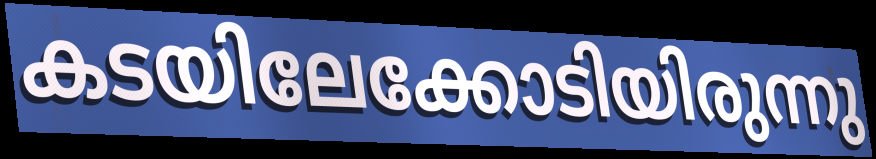
കടയിലേക്കോടിയിരുന്നു